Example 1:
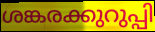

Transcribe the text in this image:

ശങ്കരക്കുറുപ്പി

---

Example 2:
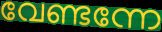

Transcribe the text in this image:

വേണ്ടന്നേ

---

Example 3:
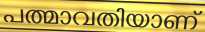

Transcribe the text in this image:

പത്മാവതിയാണ്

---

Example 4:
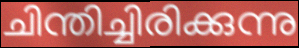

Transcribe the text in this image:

ചിന്തിച്ചിരിക്കുന്നു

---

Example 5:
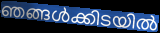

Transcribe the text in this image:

ഞങ്ങൾക്കിടയിൽ